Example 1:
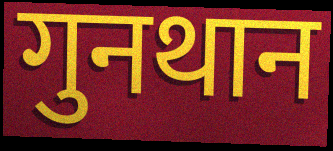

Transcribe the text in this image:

गुनथान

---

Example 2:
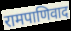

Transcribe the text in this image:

रामपाणिवाद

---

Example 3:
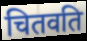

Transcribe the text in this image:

चितवति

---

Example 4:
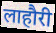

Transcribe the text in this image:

लाहौरी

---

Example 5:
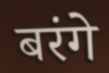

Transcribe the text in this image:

बरंगे